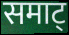
समाट्